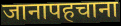
जानापहचाना